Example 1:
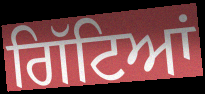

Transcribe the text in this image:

ਗਿੱਟਿਆਂ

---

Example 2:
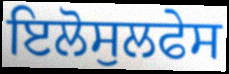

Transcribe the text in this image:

ਇਲੋਸੁਲਫੇਸ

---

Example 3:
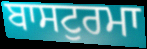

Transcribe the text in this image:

ਬਾਸਟੁਰਮਾ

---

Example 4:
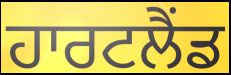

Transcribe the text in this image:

ਹਾਰਟਲੈਂਡ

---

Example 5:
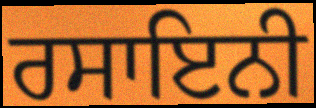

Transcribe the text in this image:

ਰਸਾਇਨੀ